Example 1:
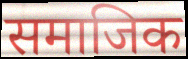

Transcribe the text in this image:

समाजिक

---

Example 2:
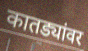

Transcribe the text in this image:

कातड्यांवर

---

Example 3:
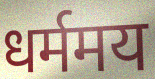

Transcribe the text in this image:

धर्ममय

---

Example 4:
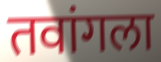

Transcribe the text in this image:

तवांगला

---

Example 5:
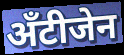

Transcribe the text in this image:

अँटीजेन